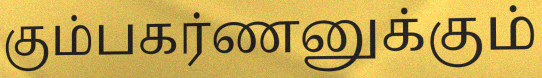
கும்பகர்ணனுக்கும்